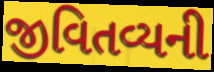
જીવિતવ્યની